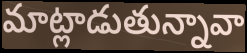
మాట్లాడుతున్నావా